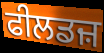
ਫੀਲਡਜ਼